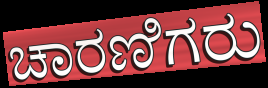
ಚಾರಣಿಗರು